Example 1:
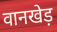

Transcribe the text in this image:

वानखेड़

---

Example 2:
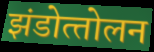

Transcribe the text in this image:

झंडोत्‍तोलन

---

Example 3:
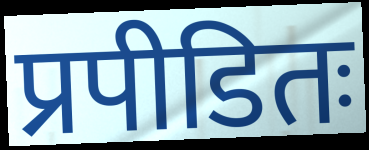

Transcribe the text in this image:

प्रपीडितः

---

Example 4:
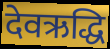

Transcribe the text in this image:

देवऋद्धि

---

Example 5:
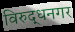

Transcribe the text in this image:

विरुद्धनगर